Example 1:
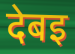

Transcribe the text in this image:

देबइ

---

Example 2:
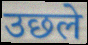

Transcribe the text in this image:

उछले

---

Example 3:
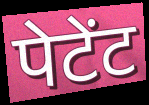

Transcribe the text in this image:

पेटेंट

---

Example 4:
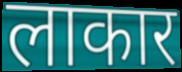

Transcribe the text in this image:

लाकार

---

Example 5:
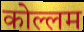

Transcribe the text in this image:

कोल्लम